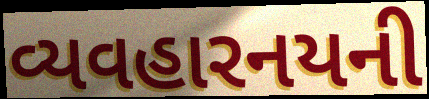
વ્યવહારનયની